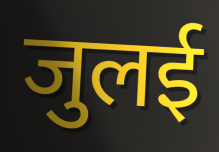
जुलई